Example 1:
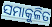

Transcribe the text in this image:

ସମାକୁଳିତ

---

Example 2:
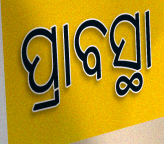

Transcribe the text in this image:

ପ୍ରାବସ୍ଥା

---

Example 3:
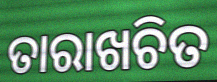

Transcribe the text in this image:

ତାରାଖଚିତ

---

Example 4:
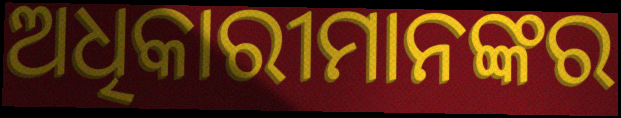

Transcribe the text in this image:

ଅଧିକାରୀମାନଙ୍କର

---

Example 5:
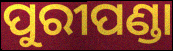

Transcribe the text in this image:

ପୁରୀପଣ୍ଡା